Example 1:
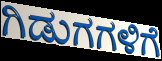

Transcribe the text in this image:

ಗಿಡುಗಗಳಿಗೆ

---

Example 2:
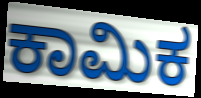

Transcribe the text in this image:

ಕಾಮಿಕ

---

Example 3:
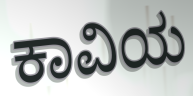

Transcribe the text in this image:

ಕಾವಿಯ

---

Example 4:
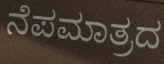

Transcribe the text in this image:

ನೆಪಮಾತ್ರದ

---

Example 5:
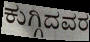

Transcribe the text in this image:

ಕುಗ್ಗಿದವರ